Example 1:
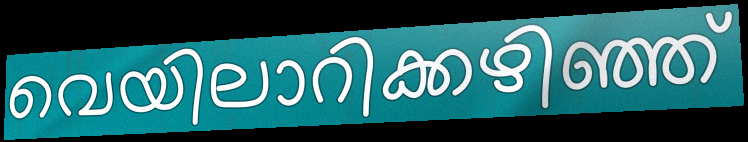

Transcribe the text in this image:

വെയിലാറിക്കഴിഞ്ഞ്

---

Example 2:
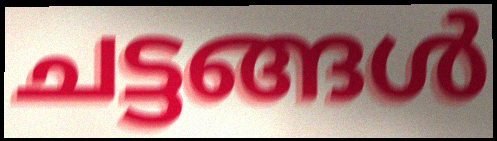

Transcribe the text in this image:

ചട്ടങ്ങൾ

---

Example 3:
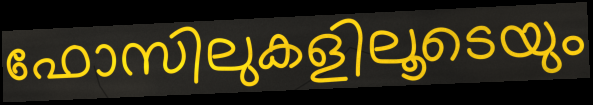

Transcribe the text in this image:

ഫോസിലുകളിലൂടെയും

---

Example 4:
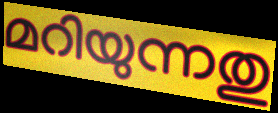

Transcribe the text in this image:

മറിയുന്നതു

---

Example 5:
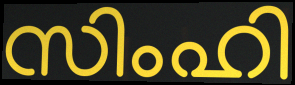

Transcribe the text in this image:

സിംഹി